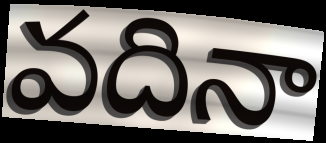
వదినా